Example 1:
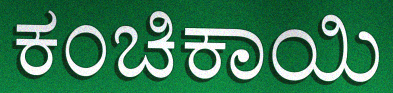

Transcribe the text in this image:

ಕಂಚಿಕಾಯಿ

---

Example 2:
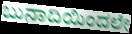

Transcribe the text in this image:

ಬುನಾದಿಯಿಂದಲೇ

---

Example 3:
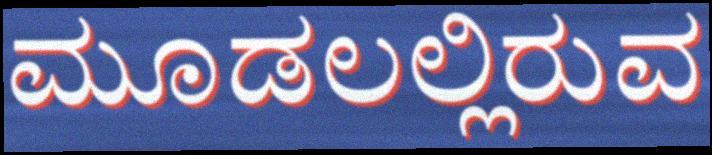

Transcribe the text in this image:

ಮೂಡಲಲ್ಲಿರುವ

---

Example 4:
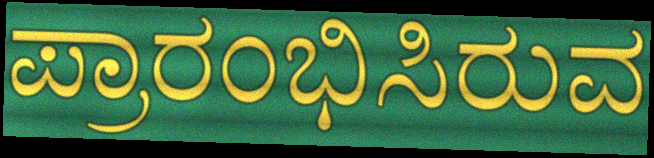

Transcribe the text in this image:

ಪ್ರಾರಂಭಿಸಿರುವ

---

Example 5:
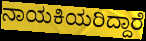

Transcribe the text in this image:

ನಾಯಕಿಯರಿದ್ದಾರೆ